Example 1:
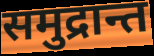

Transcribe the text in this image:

समुद्रान्त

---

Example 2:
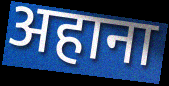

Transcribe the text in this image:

अहाना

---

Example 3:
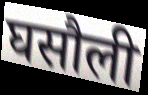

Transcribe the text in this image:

घसौली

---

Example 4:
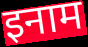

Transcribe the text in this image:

इनाम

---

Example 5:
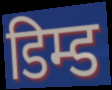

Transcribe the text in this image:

डिम्ड